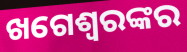
ଖଗେଶ୍ୱରଙ୍କର